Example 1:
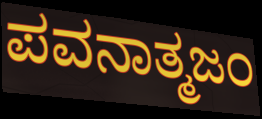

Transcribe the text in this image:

ಪವನಾತ್ಮಜಂ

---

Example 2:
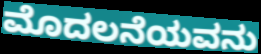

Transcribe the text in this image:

ಮೊದಲನೆಯವನು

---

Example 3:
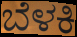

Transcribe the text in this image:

ಬೆಳಕಿ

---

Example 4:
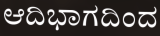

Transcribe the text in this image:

ಆದಿಭಾಗದಿಂದ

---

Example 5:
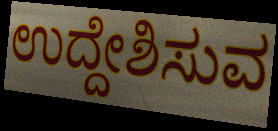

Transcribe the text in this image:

ಉದ್ದೇಶಿಸುವ